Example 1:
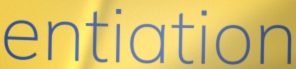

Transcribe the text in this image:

entiation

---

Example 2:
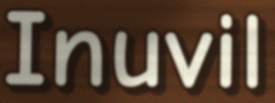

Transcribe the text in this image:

Inuvil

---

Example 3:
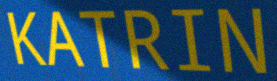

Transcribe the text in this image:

KATRIN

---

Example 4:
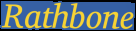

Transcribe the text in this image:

Rathbone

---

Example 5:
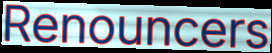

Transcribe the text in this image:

Renouncers